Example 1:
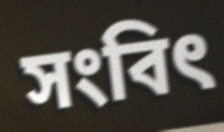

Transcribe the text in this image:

সংবিৎ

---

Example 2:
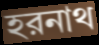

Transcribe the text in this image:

হরনাথ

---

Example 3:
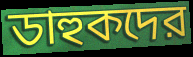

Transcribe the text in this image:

ডাহুকদের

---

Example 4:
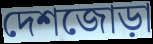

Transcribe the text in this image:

দেশজোড়া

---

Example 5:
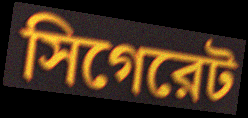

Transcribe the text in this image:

সিগেরেট